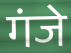
गंजे